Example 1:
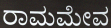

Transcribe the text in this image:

ರಾಮಮೇವ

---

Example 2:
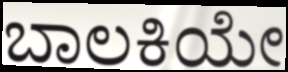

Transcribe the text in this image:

ಬಾಲಕಿಯೇ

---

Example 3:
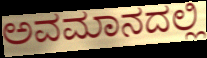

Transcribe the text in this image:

ಅವಮಾನದಲ್ಲಿ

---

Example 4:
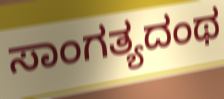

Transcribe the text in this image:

ಸಾಂಗತ್ಯದಂಥ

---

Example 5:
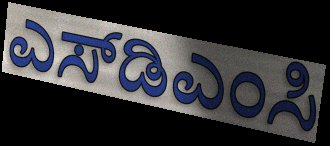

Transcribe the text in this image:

ಎಸ್‌ಡಿಎಂಸಿ